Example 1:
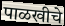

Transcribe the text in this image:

पाळखीचे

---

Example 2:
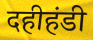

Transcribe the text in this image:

दहीहंडी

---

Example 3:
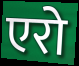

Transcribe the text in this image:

एरो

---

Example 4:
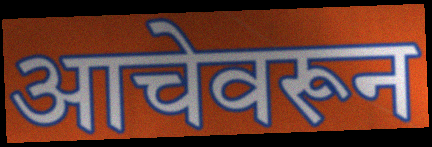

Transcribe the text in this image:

आचेवरून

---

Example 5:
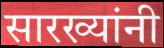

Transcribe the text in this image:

सारख्यांनी